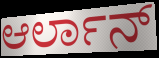
ಆರ್ಲಾನ್